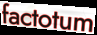
factotum